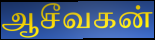
ஆசீவகன்